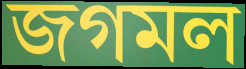
জগমল